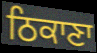
ਠਿਕਾਣਾ